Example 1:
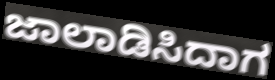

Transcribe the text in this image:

ಜಾಲಾಡಿಸಿದಾಗ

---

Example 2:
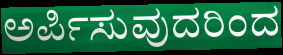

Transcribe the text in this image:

ಅರ್ಪಿಸುವುದರಿಂದ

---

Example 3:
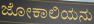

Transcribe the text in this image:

ಜೋಕಾಲಿಯನು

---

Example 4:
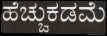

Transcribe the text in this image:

ಹೆಚ್ಚುಕಡಮೆ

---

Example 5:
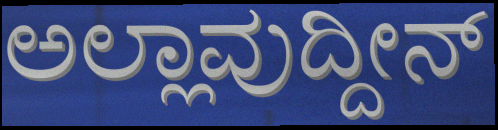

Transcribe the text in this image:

ಅಲ್ಲಾವುದ್ದೀನ್